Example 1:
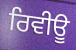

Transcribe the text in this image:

ਰਿਵੀਊ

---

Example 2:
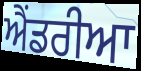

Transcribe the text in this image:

ਐਂਡਰੀਆ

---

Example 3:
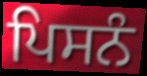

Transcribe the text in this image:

ਪਿਸਨੰ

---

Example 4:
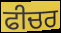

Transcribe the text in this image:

ਫੀਚਰ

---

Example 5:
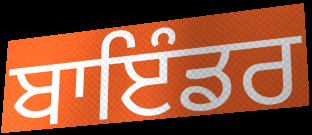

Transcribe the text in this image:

ਬਾਇੰਡਰ